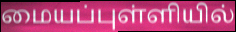
மையப்புள்ளியில்